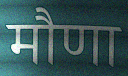
मौणा